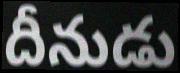
దీనుడు